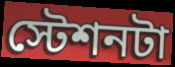
স্টেশনটা